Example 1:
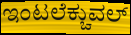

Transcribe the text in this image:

ಇಂಟಲೆಕ್ಚುವಲ್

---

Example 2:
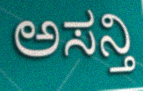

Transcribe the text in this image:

ಅಸನ್ತಿ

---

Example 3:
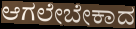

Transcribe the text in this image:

ಆಗಲೇಬೇಕಾದ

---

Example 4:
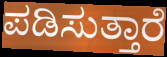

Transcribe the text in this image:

ಪಡಿಸುತ್ತಾರೆ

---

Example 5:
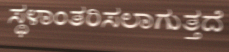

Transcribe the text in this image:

ಸ್ಥಳಾಂತರಿಸಲಾಗುತ್ತದೆ